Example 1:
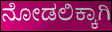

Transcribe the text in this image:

ನೋಡಲಿಕ್ಕಾಗಿ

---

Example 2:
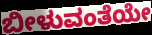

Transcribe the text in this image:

ಬೀಳುವಂತೆಯೇ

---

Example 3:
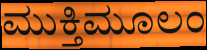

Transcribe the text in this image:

ಮುಕ್ತಿಮೂಲಂ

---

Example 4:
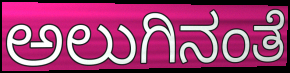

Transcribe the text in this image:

ಅಲುಗಿನಂತೆ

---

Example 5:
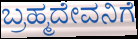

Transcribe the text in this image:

ಬ್ರಹ್ಮದೇವನಿಗೆ